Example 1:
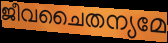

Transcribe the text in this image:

ജീവചൈതന്യമേ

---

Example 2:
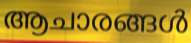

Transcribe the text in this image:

ആചാരങ്ങൾ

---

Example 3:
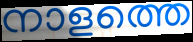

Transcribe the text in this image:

നാളത്തെ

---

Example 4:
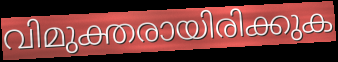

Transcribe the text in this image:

വിമുക്തരായിരിക്കുക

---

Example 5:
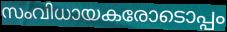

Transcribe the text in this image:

സംവിധായകരോടൊപ്പം